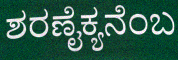
ಶರಣೈಕ್ಯನೆಂಬ